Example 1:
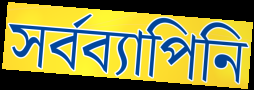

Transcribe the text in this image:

সর্বব্যাপিনি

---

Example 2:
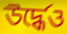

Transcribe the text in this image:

উর্দ্ধেও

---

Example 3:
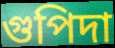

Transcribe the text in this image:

গুপিদা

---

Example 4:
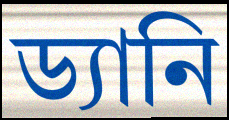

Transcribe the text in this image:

ড্যানি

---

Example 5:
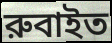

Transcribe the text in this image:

রুবাইত